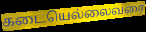
கடையெல்லைவரை